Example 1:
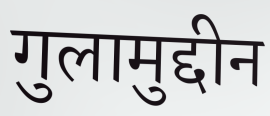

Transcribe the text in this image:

गुलामुद्दीन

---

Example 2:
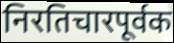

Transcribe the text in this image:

निरतिचारपूर्वक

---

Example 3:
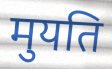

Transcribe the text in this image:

मुयति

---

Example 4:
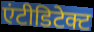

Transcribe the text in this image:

एंटीडिटेक्ट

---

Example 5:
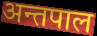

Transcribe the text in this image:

अन्तपाल